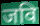
जवि